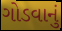
ગોડવાનું